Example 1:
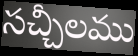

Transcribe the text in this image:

సచ్చీలము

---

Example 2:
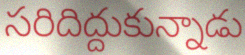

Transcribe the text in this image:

సరిదిద్దుకున్నాడు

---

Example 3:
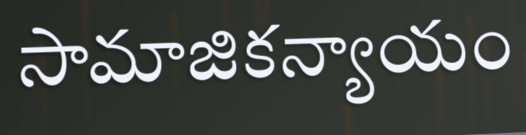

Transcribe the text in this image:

సామాజికన్యాయం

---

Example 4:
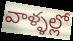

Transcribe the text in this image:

వాళ్ళల్లో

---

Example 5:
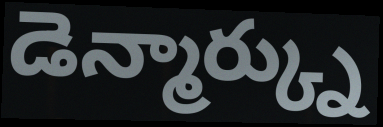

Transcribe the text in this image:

డెన్మార్క్ను